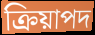
ক্রিয়াপদ